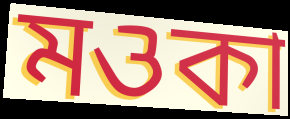
মওকা